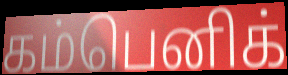
கம்பெனிக்